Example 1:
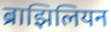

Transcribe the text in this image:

ब्राझिलियन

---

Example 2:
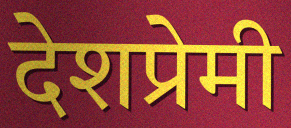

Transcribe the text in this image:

देशप्रेमी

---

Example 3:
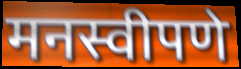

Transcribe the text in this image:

मनस्वीपणे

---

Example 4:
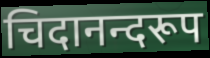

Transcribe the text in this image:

चिदानन्दरूप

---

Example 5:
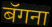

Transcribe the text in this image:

बॅगना